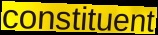
constituent